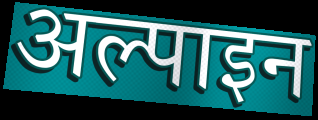
अल्पाइन